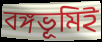
বঙ্গভূমিই